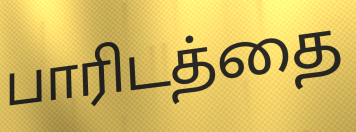
பாரிடத்தை